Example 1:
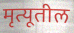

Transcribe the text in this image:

मृत्यूतील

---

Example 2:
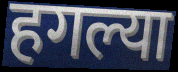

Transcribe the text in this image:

हगल्या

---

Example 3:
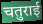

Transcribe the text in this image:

चतुराई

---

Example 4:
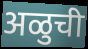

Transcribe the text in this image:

अळुची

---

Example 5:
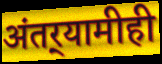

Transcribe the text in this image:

अंतर्यामीही